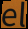
el